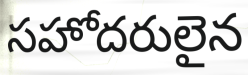
సహోదరులైన